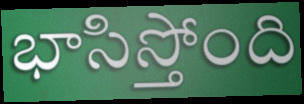
భాసిస్తోంది